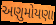
અણુમોયણા